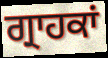
ਗ੍ਰਾਹਕਾਂ